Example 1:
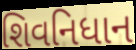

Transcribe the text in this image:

શિવનિધાન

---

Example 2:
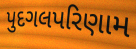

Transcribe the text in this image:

પુદગલપરિણામ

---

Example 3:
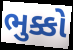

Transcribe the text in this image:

ભુક્કો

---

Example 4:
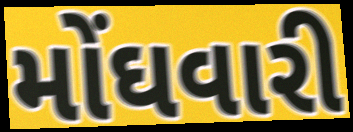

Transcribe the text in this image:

મોંઘવારી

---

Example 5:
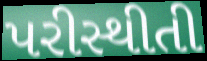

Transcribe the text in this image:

પરીસ્થીતી